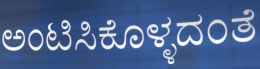
ಅಂಟಿಸಿಕೊಳ್ಳದಂತೆ